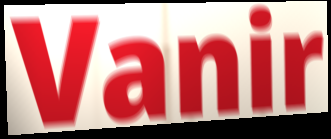
Vanir